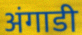
अंगाडी